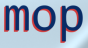
mop